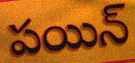
పయిన్